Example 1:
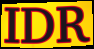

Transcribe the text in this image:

IDR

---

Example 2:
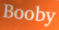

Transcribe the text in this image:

Booby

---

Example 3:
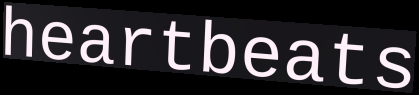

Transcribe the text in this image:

heartbeats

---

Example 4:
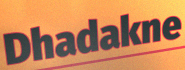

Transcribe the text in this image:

Dhadakne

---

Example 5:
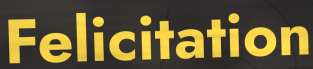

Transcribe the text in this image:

Felicitation